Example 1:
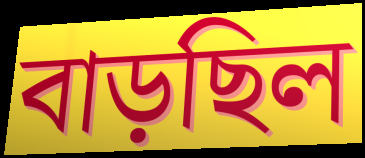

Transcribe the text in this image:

বাড়ছিল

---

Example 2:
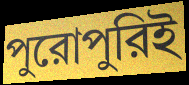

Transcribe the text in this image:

পুরোপুরিই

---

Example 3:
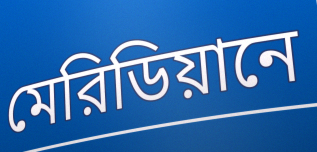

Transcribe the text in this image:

মেরিডিয়ানে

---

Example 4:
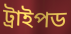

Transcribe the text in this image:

ট্রাইপড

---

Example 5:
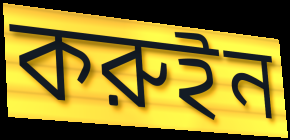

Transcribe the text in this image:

করুইন